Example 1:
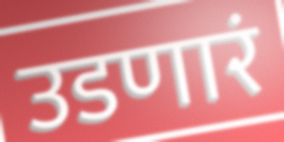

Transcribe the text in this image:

उडणारं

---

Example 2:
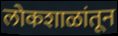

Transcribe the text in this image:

लोकशाळांतून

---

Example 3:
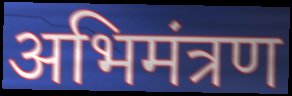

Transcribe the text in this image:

अभिमंत्रण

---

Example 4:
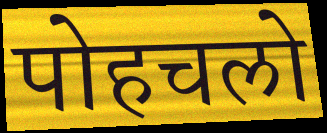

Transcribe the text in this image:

पोहचलो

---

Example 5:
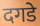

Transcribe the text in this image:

दगडे